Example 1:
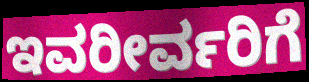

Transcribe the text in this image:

ಇವರೀರ್ವರಿಗೆ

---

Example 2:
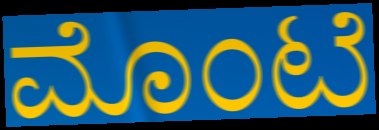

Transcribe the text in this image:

ಮೊಂಟೆ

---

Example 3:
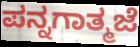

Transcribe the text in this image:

ಪನ್ನಗಾತ್ಮಜೆ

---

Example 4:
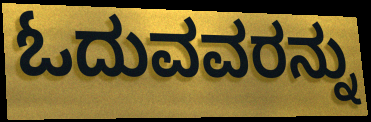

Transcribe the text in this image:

ಓದುವವರನ್ನು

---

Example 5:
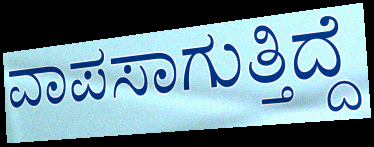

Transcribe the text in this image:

ವಾಪಸಾಗುತ್ತಿದ್ದೆ